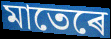
মাতেৰে